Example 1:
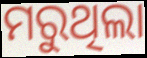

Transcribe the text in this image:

ମରୁଥିଲା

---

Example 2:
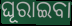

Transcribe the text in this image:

ଘୂରାଇବା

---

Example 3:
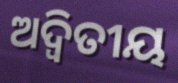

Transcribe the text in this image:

ଅଦ୍ବିତୀୟ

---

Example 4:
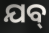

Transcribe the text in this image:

ଯବ୍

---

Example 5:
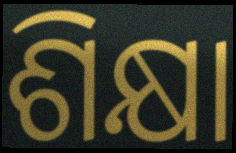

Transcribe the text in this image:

ଶିକ୍ଷା